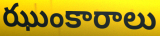
ఝుంకారాలు